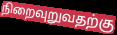
நிறைவுறுவதற்கு